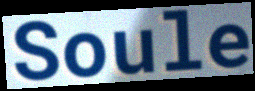
Soule